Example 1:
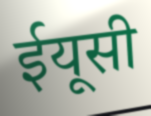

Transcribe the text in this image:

ईयूसी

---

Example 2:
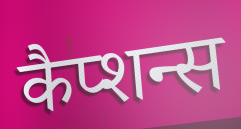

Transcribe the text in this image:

कैप्शन्स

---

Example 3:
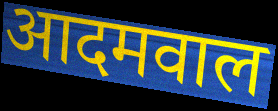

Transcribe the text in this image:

आदमवाल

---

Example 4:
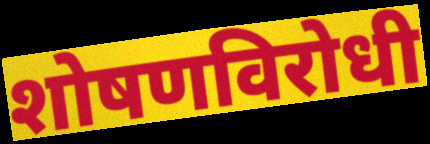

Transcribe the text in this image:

शोषणविरोधी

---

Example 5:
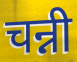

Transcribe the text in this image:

चन्नी